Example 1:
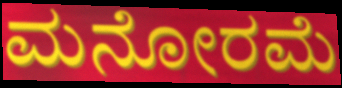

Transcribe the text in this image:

ಮನೋರಮೆ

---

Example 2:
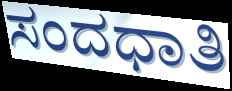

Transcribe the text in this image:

ಸಂದಧಾತಿ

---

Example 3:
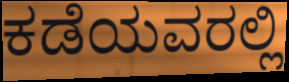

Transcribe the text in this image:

ಕಡೆಯವರಲ್ಲಿ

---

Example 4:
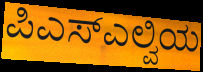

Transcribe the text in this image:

ಪಿಎಸ್ಎಲ್ವಿಯ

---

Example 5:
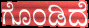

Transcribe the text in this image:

ಗೊಂಡಿದೆ